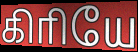
கிரியே